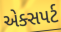
એક્સપર્ટ